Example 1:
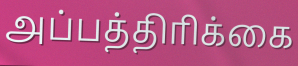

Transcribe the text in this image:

அப்பத்திரிக்கை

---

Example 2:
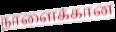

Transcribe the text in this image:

நாளைக்கான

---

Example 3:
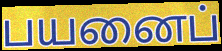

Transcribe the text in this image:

பயனைப்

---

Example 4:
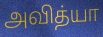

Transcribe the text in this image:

அவித்யா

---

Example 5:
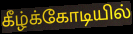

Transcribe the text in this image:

கீழ்க்கோடியில்